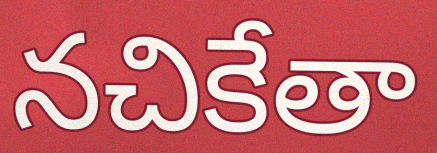
నచికేతా